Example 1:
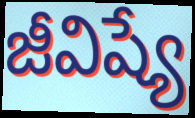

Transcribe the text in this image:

జీవిష్యే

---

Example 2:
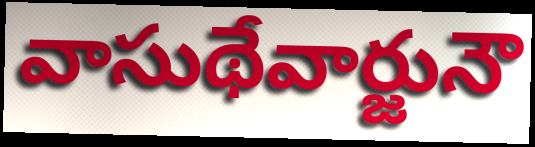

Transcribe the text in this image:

వాసుథేవార్జునౌ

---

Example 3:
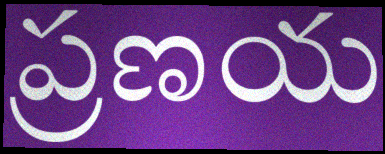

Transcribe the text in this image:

ప్రణయ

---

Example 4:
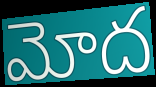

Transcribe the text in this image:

మోద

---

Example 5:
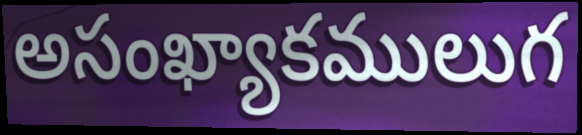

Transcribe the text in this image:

అసంఖ్యాకములుగ